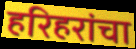
हरिहरांचा